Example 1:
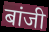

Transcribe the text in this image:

बांजी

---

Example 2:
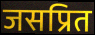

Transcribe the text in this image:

जसप्रित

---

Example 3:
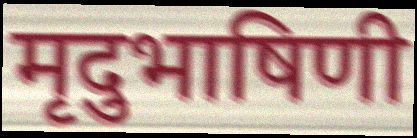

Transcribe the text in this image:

मृदुभाषिणी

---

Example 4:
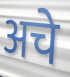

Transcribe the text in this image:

अचे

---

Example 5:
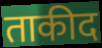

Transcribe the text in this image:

ताकीद